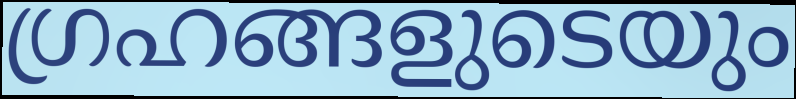
ഗ്രഹങ്ങളുടെയും